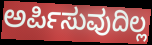
ಅರ್ಪಿಸುವುದಿಲ್ಲ